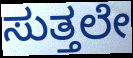
ಸುತ್ತಲೇ